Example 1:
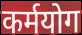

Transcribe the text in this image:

कर्मयोग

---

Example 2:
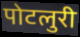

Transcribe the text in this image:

पोटलुरी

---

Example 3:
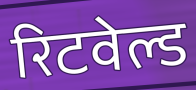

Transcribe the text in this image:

रिटवेल्ड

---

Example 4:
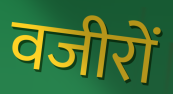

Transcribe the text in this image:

वजीरों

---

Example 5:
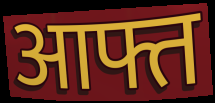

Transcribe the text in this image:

आफ्त